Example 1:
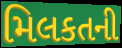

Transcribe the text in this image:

મિલકતની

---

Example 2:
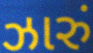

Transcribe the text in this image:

ઝારું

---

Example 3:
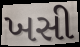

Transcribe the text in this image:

ખસી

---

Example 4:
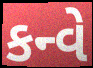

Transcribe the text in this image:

કન્વે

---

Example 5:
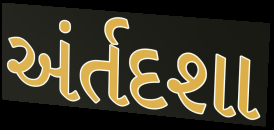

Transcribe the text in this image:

અંર્તદશા